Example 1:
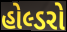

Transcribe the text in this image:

હોલ્ડરો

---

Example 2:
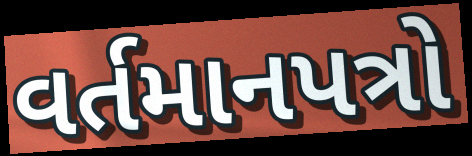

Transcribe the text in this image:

વર્તમાનપત્રો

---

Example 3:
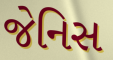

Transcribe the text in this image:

જેનિસ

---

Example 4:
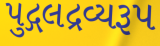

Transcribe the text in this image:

પુદ્ગલદ્રવ્યરૂપ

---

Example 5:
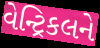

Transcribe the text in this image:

વેન્ટ્રિકલને